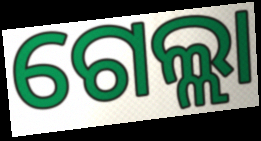
ଗେଲ୍ଲା